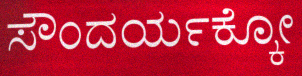
ಸೌಂದರ್ಯಕ್ಕೋ